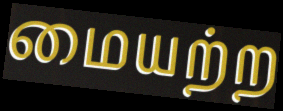
மையற்ற